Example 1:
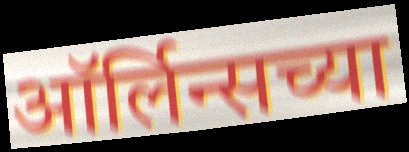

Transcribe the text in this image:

ऑर्लिन्सच्या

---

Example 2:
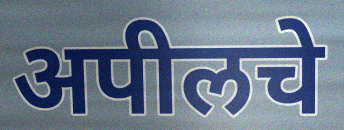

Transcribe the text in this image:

अपीलचे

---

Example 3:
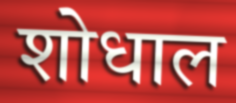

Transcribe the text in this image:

शोधाल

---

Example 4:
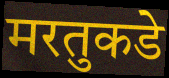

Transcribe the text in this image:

मरतुकडे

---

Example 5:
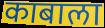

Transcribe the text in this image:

काबाला